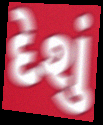
દેશું